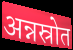
अन्नस्रोत